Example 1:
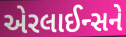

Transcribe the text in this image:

એરલાઈન્સને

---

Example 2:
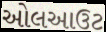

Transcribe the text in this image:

ઓલઆઉટ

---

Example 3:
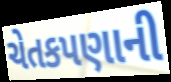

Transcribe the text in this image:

ચેતકપણાની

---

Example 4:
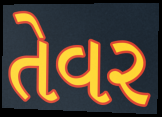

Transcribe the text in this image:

તેવર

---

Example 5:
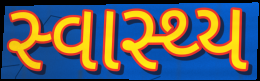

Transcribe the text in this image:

સ્વાસ્થ્ય